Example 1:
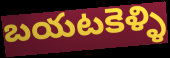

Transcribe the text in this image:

బయటకెళ్ళి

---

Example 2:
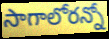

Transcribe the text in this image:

సాగాలోరన్నో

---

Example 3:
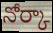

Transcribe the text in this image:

నోర్కా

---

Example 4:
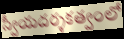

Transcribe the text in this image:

స్వీయదర్శకత్వంలో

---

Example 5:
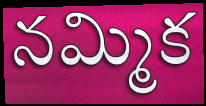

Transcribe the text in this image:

నమ్మిక